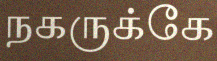
நகருக்கே